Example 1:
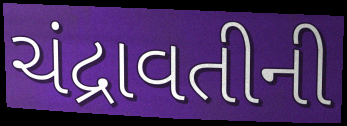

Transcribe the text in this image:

ચંદ્રાવતીની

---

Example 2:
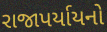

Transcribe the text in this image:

રાજાપર્યાયનો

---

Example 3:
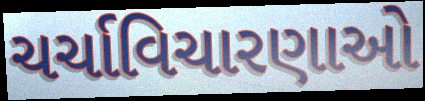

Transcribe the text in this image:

ચર્ચાવિચારણાઓ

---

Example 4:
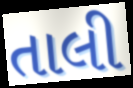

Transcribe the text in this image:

તાલી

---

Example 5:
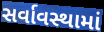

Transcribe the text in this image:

સર્વાવસ્થામાં